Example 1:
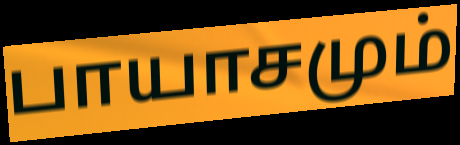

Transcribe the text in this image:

பாயாசமும்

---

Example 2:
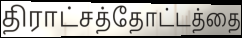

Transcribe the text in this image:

திராட்சத்தோட்டத்தை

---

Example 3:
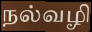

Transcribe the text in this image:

நல்வழி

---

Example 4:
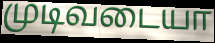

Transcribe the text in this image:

முடிவடையா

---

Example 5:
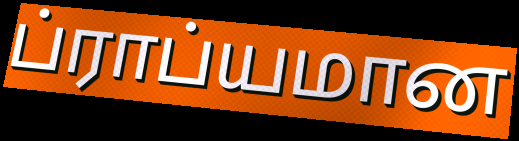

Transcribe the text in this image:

ப்ராப்யமான